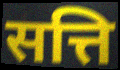
सत्ति